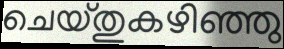
ചെയ്തുകഴിഞ്ഞു